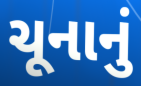
ચૂનાનું